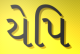
યેપિ